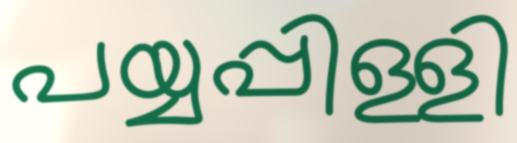
പയ്യപ്പിള്ളി